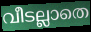
വീടല്ലാതെ